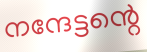
നന്ദേട്ടന്റെ